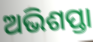
ଅଭିଶପ୍ତା